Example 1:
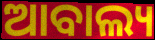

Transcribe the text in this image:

ଆବାଲ୍ୟ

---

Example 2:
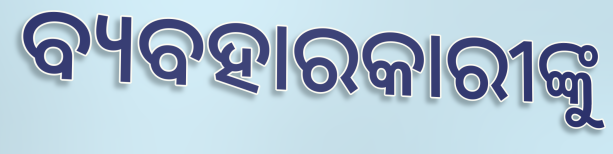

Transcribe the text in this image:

ବ୍ୟବହାରକାରୀଙ୍କୁ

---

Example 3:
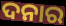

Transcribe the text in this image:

ଦନାର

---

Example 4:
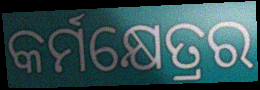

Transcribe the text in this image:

କର୍ମକ୍ଷେତ୍ରର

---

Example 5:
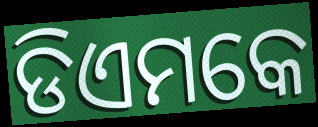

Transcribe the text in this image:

ଡିଏମକେ